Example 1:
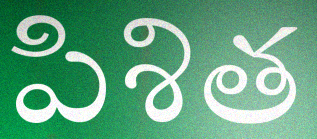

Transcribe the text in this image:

పిశిత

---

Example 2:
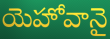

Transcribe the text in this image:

యెహోవానై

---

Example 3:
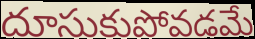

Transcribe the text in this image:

దూసుకుపోవడమే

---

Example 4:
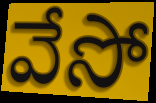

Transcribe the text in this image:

వేసో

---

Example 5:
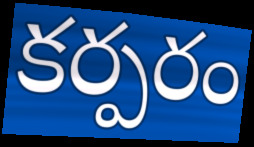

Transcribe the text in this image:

కర్పరం